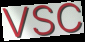
VSC